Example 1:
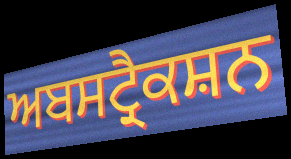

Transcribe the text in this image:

ਅਬਸਟ੍ਰੈਕਸ਼ਨ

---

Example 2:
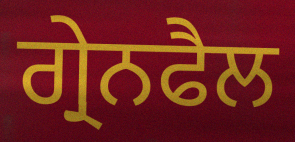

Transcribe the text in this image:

ਗ੍ਰੇਨਫੈਲ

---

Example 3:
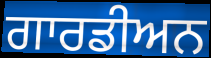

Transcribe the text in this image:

ਗਾਰਡੀਅਨ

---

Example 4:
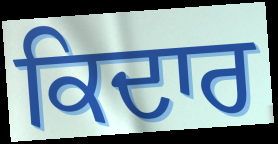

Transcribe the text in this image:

ਕਿਦਾਰ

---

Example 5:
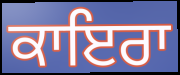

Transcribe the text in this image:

ਕਾਇਰਾ